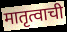
मातृत्वाची